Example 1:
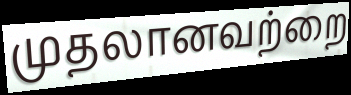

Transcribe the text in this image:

முதலானவற்றை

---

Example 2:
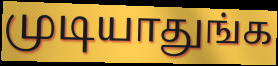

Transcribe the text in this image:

முடியாதுங்க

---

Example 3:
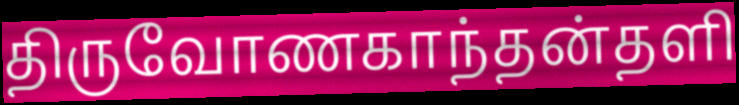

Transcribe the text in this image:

திருவோணகாந்தன்தளி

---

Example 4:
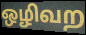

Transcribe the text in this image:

ஒழிவற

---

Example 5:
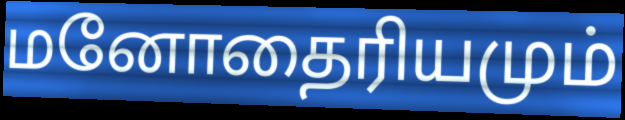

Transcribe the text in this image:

மனோதைரியமும்